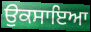
ਉਕਸਾਇਆ